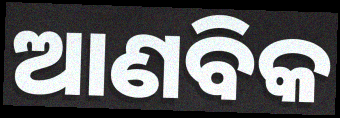
ଆଣବିକ